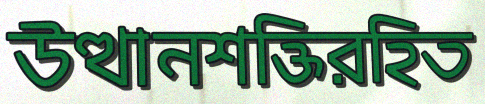
উত্থানশক্তিরহিত